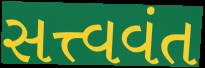
સત્ત્વવંત